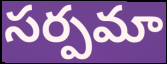
సర్పమా